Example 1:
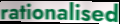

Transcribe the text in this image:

rationalised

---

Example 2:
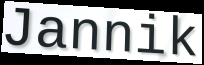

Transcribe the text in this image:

Jannik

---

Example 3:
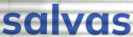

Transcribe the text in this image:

salvas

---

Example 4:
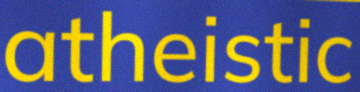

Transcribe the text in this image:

atheistic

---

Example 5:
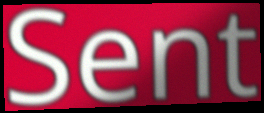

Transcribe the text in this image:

Sent